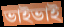
ভাইভাই